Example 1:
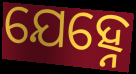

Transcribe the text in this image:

ଯେହ୍ନେ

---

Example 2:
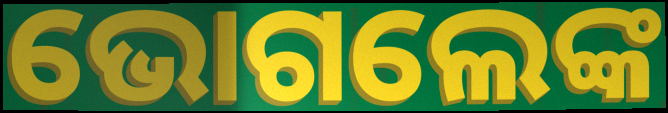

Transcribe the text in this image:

ଭୋଗଲେଙ୍କ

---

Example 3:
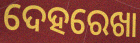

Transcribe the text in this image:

ଦେହରେଖା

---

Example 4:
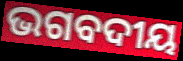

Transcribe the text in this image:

ଭଗବଦୀୟ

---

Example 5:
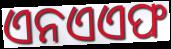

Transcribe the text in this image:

ଏନଏଏଫ